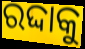
ରଦ୍ଦାକୁ